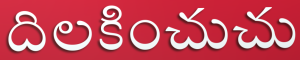
దిలకించుచు